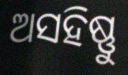
ଅସହିଷ୍ଣୁ